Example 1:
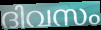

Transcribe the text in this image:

ദിവസം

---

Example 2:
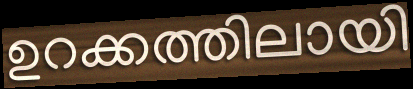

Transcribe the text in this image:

ഉറക്കത്തിലായി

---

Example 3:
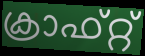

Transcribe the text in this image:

ക്രാഫ്റ്റ്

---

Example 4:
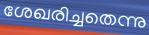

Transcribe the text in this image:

ശേഖരിച്ചതെന്നു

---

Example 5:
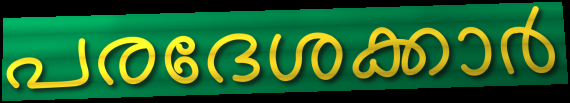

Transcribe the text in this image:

പരദേശക്കാർ